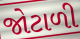
જોટાળી